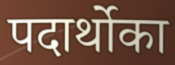
पदार्थोका